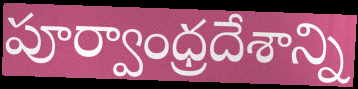
పూర్వాంధ్రదేశాన్ని